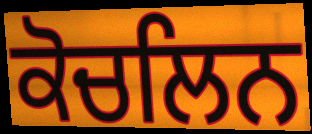
ਕੋਚਲਿਨ